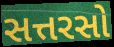
સત્તરસો